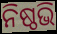
ନିଷ୍ଠଭି